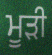
ਮੂੜੀ